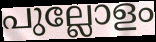
പുല്ലോളം